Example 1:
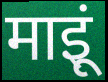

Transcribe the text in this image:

माइूं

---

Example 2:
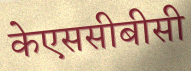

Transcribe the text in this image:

केएससीबीसी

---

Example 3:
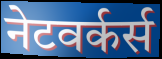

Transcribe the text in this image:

नेटवर्कर्स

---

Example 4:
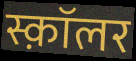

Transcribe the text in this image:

स्क़ॉलर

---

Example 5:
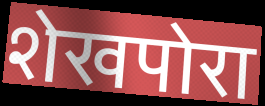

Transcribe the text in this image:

शेखपोरा